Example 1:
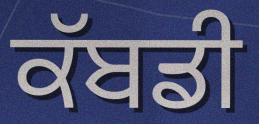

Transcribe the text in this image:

ਕੱਬਡੀ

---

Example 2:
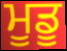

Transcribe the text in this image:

ਮੂਡੂ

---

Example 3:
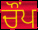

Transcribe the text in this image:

ਚੌਂਪ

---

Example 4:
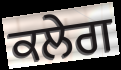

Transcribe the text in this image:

ਕਲੇਗ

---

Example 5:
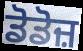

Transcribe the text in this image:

ਡੋਡੋਜ਼